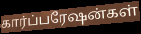
கார்ப்பரேஷன்கள்